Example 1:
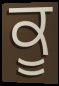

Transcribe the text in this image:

ਕੂ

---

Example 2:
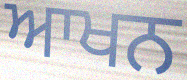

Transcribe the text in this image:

ਆਖਨ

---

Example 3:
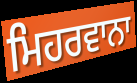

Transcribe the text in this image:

ਮਿਹਰਵਾਨਾ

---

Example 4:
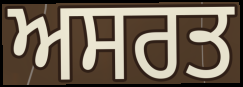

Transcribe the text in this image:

ਅਸਰਤ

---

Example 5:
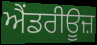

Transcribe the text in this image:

ਐਂਡਰੀਊਜ਼